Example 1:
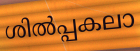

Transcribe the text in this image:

ശിൽപ്പകലാ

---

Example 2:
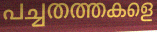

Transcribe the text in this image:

പച്ചതത്തകളെ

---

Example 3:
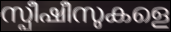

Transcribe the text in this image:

സ്പീഷീസുകളെ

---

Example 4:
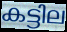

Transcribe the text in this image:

കട്ടില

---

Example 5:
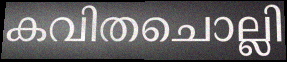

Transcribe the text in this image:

കവിതചൊല്ലി